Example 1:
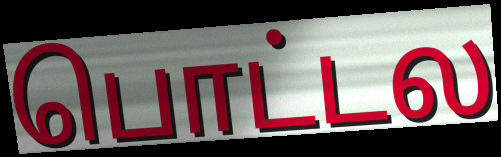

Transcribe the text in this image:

பொட்டல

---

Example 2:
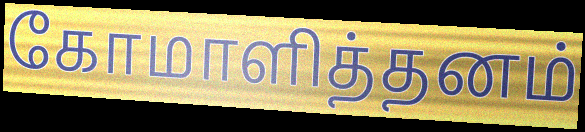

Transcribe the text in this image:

கோமாளித்தனம்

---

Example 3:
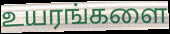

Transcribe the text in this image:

உயரங்களை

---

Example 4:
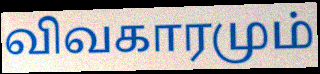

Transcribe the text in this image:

விவகாரமும்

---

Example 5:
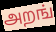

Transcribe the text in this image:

அறங்